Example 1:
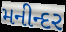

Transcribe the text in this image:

મનીન્દર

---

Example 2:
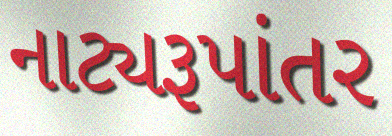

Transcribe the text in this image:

નાટ્યરૂપાંતર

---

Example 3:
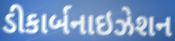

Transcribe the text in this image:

ડીકાર્બનાઇઝેશન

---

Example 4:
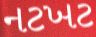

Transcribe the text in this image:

નટખટ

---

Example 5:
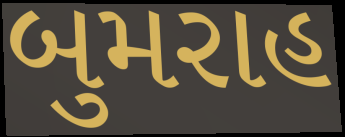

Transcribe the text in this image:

બુમરાહ